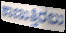
ಕಾಣುತ್ತಿರಲು